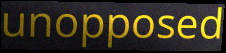
unopposed